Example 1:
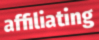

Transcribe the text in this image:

affiliating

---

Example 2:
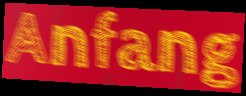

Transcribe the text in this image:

Anfang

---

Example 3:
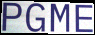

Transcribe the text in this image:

PGME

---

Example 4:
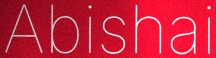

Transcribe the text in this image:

Abishai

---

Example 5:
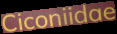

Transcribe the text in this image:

Ciconiidae